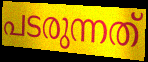
പടരുന്നത്